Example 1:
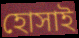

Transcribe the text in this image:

হোসাই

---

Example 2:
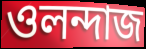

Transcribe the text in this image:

ওলন্দাজ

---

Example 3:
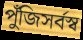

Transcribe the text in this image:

পুঁজিসর্বস্ব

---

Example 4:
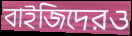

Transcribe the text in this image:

বাইজিদেরও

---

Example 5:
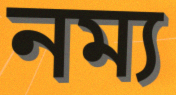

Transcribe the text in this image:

নম্য